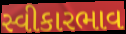
સ્વીકારભાવ